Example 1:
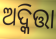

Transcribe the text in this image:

ଅଦ୍କିତ୍ତା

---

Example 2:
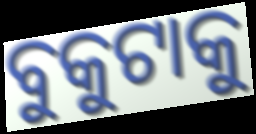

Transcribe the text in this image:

ବୁକୁଟାକୁ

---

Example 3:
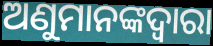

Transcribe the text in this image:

ଅଣୁମାନଙ୍କଦ୍ଵାରା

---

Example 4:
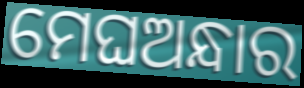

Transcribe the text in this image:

ମେଘଅନ୍ଧାର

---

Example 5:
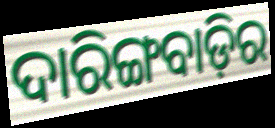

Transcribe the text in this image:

ଦାରିଙ୍ଗବାଡ଼ିର